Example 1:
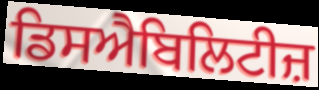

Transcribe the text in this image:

ਡਿਸਐਬਿਲਿਟੀਜ਼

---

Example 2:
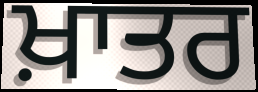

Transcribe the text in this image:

ਖ਼ਾਤਰ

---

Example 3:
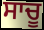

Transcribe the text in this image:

ਸਾਚੂ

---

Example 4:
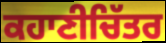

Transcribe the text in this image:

ਕਹਾਣੀਚਿੱਤਰ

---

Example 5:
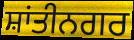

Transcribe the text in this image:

ਸ਼ਾਂਤੀਨਗਰ